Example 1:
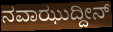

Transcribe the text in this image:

ನವಾಝುದ್ದೀನ್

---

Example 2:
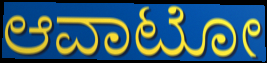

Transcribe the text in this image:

ಆವಾಟೋ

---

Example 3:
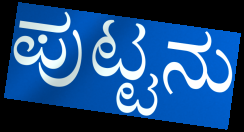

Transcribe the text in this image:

ಪುಟ್ಟನು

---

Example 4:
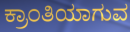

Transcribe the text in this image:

ಕ್ರಾಂತಿಯಾಗುವ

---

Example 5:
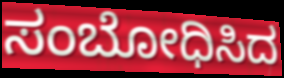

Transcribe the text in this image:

ಸಂಬೋಧಿಸಿದ